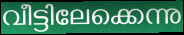
വീട്ടിലേക്കെന്നു